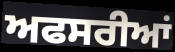
ਅਫਸਰੀਆਂ